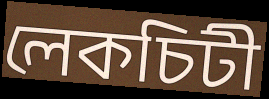
লেকচিটী